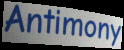
Antimony